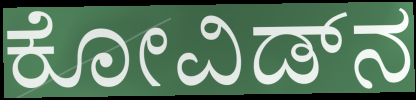
ಕೋವಿಡ್‌ನ